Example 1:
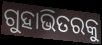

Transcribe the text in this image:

ଗୁହାଭିତରକୁ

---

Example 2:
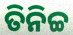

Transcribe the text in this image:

ତିନିଚ୍ଚ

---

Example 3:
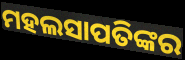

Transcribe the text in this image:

ମହଲସାପତିଙ୍କର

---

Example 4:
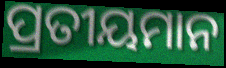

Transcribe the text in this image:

ପ୍ରତୀୟମାନ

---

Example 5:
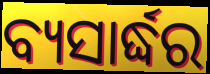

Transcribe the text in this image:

ବ୍ୟସାର୍ଦ୍ଧର